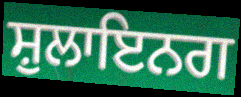
ਸ਼ੁਲਾਇਨਗ